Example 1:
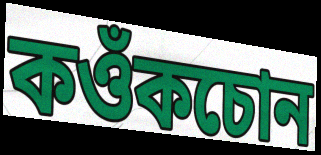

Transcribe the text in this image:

কওঁকচোন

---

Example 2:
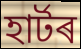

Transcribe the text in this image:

হাৰ্টৰ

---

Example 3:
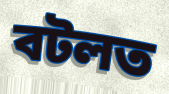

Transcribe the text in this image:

বটলত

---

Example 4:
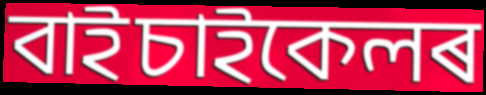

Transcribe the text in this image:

বাইচাইকেলৰ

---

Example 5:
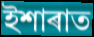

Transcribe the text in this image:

ইশাৰাত